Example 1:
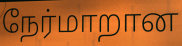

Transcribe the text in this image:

நேர்மாறான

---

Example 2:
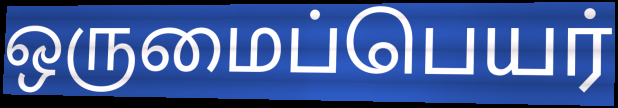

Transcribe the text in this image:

ஒருமைப்பெயர்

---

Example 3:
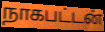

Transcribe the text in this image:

நாகபட்டன்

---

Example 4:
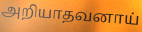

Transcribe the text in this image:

அறியாதவனாய்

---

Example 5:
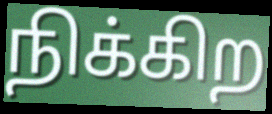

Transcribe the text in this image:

நிக்கிற